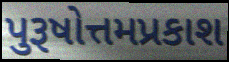
પુરૂષોત્તમપ્રકાશ